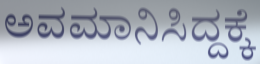
ಅವಮಾನಿಸಿದ್ದಕ್ಕೆ